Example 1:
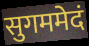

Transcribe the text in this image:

सुगममेदं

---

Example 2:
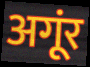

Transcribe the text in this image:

अगूंर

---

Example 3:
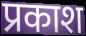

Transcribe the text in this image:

प्रकाश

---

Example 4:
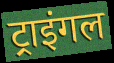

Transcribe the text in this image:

ट्राइंगल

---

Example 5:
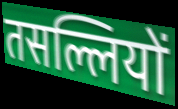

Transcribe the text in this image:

तसल्लियों